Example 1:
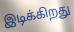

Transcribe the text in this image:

இடிக்கிறது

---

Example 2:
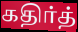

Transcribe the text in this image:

கதிர்த்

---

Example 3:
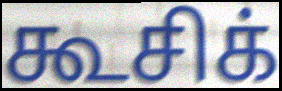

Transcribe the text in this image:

கூசிக்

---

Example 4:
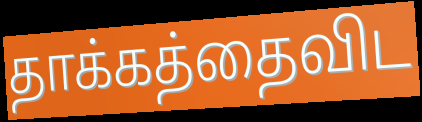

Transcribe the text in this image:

தாக்கத்தைவிட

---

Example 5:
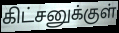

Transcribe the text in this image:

கிட்சனுக்குள்